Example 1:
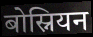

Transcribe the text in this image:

बोस्नियन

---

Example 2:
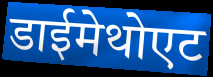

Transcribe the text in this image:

डाईमेथोएट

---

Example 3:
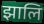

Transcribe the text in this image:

झालि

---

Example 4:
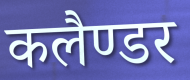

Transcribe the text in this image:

कलैण्डर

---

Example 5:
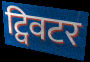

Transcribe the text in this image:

ट्विवटर